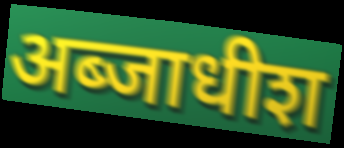
अब्जाधीश